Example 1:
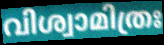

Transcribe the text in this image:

വിശ്വാമിത്രഃ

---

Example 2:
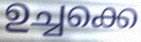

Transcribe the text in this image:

ഉച്ചക്കെ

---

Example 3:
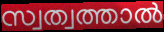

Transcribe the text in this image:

സ്വത്വത്താൽ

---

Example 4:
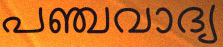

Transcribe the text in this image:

പഞ്ചവാദ്യ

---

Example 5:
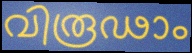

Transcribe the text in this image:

വിരൂഢാം